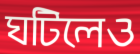
ঘটিলেও